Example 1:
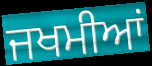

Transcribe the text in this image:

ਜਖਮੀਆਂ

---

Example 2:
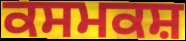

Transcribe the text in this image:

ਕਸਮਕਸ਼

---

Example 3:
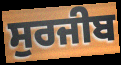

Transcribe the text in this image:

ਸੁਰਜੀਬ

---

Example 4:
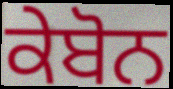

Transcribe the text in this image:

ਕੇਬੋਨ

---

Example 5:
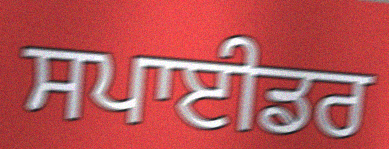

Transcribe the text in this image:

ਸਪਾਈਡਰ